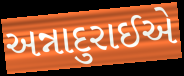
અન્નાદુરાઈએ